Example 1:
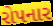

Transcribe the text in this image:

રોપનાર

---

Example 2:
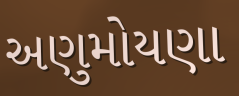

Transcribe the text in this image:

અણુમોયણા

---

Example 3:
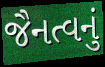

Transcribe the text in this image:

જૈનત્વનું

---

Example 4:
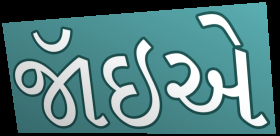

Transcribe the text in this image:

જૉઇએ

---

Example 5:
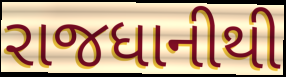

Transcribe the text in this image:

રાજધાનીથી